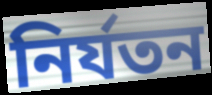
নির্যতন